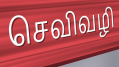
செவிவழி